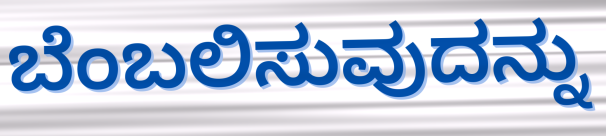
ಬೆಂಬಲಿಸುವುದನ್ನು